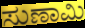
ಸುಣಾಮಿ